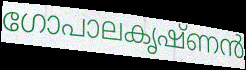
ഗോപാലകൃഷ്ണൻ